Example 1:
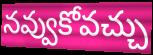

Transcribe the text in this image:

నవ్వుకోవచ్చు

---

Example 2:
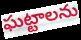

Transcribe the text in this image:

ఘట్టాలను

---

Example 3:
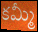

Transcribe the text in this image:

కమ్మీ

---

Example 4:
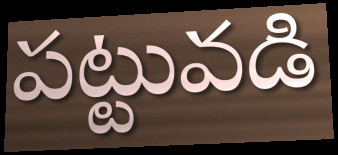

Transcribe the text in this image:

పట్టువడి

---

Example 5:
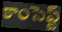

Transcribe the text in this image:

కాంసెప్ట్